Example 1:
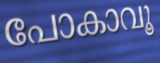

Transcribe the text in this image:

പോകാവൂ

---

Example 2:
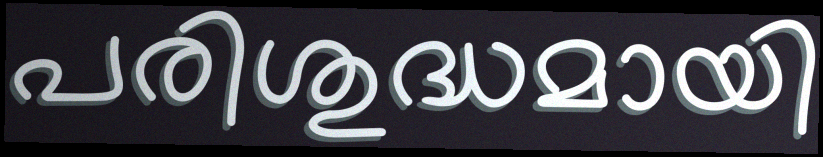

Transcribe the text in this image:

പരിശുദ്ധമായി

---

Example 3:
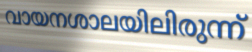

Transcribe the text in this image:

വായനശാലയിലിരുന്ന്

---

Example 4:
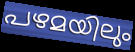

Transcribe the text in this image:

പഴമയിലും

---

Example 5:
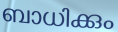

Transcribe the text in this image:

ബാധിക്കും